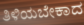
ತಿಳಿಯಬೇಕಾದ